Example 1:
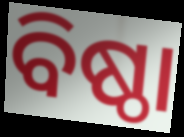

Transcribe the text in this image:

ବିଷ୍ଠା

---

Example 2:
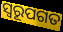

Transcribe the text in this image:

ସ୍ଵରୂପଗତ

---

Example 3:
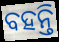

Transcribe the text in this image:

ବହନ୍ତି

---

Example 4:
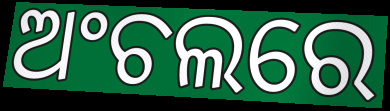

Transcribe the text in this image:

ଅଂଚଲରେ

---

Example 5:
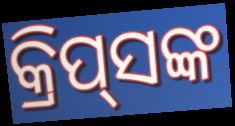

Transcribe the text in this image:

କ୍ରିପ୍‌ସଙ୍କ